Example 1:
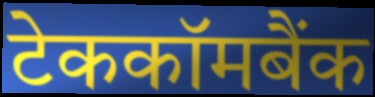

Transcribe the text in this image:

टेककॉमबैंक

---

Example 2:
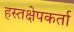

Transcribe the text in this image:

हस्तक्षेपकर्ता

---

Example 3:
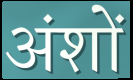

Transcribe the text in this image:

अंशों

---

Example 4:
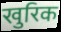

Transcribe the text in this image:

खुरिक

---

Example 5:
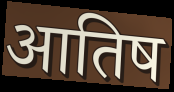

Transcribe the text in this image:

आतिष